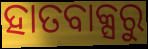
ହାତବାକ୍ସରୁ